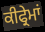
ਕੀਫ੍ਰੇਮਾਂ